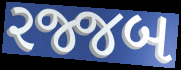
રજ્જબ